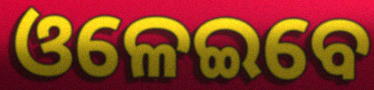
ଓଳେଇବେ